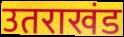
उतराखंड